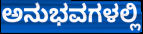
ಅನುಭವಗಳಲ್ಲಿ